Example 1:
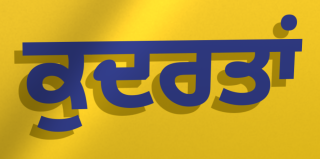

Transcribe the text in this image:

ਕੁਦਰਤਾਂ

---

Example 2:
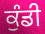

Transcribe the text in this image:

ਕੁੰਡੀ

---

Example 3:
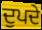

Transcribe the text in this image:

ਦੁਪਦੇ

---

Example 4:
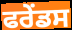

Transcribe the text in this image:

ਫਰੇਂਡਸ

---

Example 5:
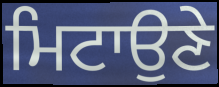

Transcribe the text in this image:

ਮਿਟਾਉਣੇ